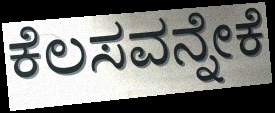
ಕೆಲಸವನ್ನೇಕೆ